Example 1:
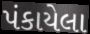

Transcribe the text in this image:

પંકાયેલા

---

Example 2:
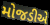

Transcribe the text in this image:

મોજડીએ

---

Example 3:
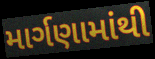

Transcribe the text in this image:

માર્ગણામાંથી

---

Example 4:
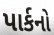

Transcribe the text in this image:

પાર્કનો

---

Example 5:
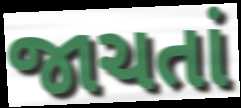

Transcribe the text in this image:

જાચતાં